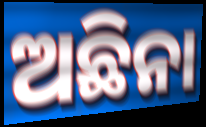
ଅଛିନା